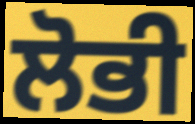
ਲੋਭੀ